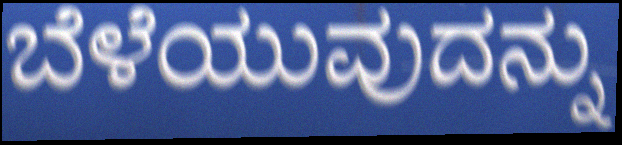
ಬೆಳೆಯುವುದನ್ನು